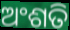
ଅଂଶତି